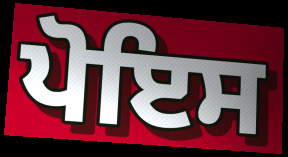
ਪੋਇਸ